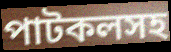
পাটকলসহ